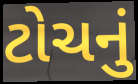
ટોચનું